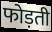
फोड़ती